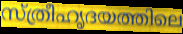
സ്ത്രീഹൃദയത്തിലെ